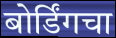
बोर्डिंगचा